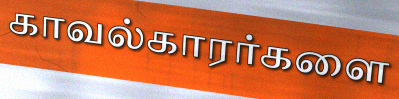
காவல்காரர்களை